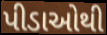
પીડાઓથી